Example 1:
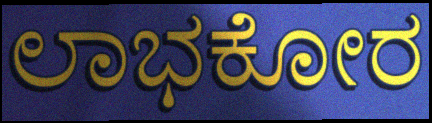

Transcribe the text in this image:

ಲಾಭಕೋರ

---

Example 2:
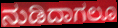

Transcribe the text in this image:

ನುಡಿದಾಗಲೂ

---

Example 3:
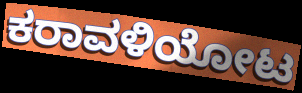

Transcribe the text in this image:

ಕರಾವಳಿಯೋಟ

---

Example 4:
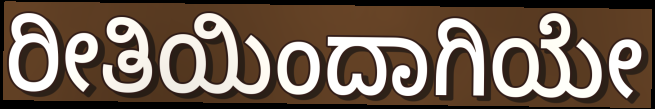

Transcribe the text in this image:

ರೀತಿಯಿಂದಾಗಿಯೇ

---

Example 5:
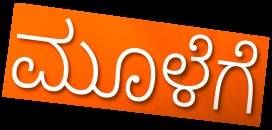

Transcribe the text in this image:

ಮೂಳೆಗೆ